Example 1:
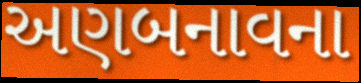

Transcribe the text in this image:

અણબનાવના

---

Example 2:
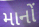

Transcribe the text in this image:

માનોં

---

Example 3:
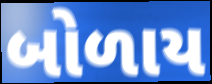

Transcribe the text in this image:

બોળાય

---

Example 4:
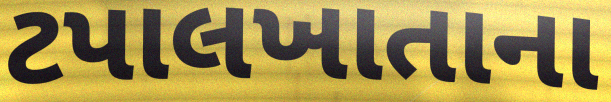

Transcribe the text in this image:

ટપાલખાતાના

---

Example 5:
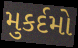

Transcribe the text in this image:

મુકર્દમો